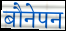
बौनेपन